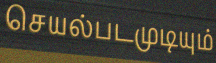
செயல்படமுடியும்